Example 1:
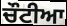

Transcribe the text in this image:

ਚੌਟੀਆ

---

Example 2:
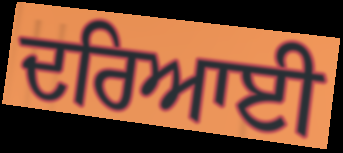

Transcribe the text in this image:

ਦਰਿਆਈ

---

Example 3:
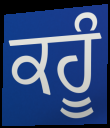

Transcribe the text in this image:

ਕਹੂੰ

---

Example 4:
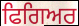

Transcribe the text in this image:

ਫਿਗਿਅਰ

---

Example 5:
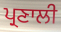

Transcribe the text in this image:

ਪ੍ਰਣਾਲੀ